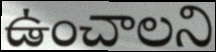
ఉంచాలని